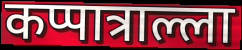
कप्पात्राल्ला